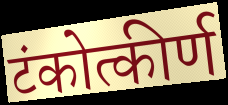
टंकोत्कीर्ण